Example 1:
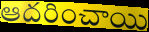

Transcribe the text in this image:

ఆదరించాయి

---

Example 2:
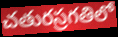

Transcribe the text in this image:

చతురస్రగతిలో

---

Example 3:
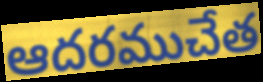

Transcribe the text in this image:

ఆదరముచేత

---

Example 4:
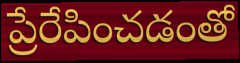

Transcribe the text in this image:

ప్రేరేపించడంతో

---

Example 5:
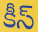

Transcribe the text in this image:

కీస్